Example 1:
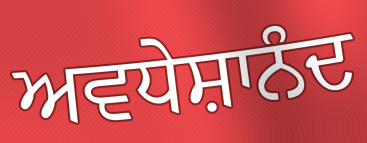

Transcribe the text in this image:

ਅਵਧੇਸ਼ਾਨੰਦ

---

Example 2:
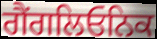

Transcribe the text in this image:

ਗੈਂਗਲਿਓਨਿਕ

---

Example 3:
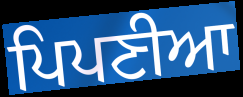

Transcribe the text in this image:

ਪਿਪਣੀਆ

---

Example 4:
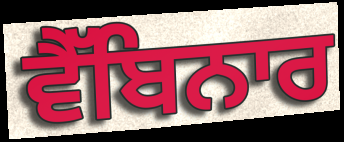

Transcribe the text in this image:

ਵੈੱਬਿਨਾਰ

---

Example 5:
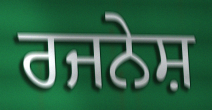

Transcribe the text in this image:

ਰਜਨੇਸ਼